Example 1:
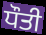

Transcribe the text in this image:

ਧੌਤੀ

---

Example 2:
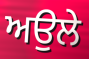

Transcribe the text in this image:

ਅਉਲੇ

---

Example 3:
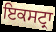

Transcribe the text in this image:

ਇਕਸਟ੍ਰਾ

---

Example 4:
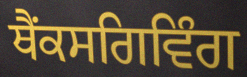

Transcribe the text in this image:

ਥੈਂਕਸਗਿਵਿੰਗ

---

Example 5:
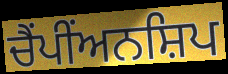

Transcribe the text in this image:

ਚੈਂਪੀਂਅਨਸ਼ਿਪ